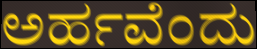
ಅರ್ಹವೆಂದು